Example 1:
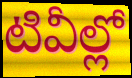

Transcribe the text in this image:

టివీల్లో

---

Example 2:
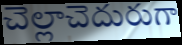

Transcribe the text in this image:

చెల్లాచెదురుగా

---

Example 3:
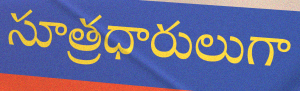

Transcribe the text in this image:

సూత్రధారులుగా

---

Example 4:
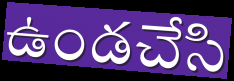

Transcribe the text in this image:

ఉండచేసి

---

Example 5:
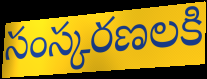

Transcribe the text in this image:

సంస్కరణలకి